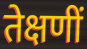
तेक्षणीं